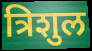
त्रिशुल